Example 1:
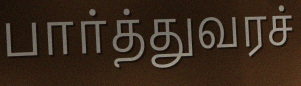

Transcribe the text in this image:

பார்த்துவரச்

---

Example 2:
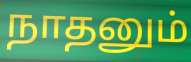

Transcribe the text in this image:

நாதனும்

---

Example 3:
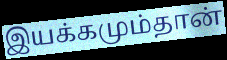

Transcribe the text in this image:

இயக்கமும்தான்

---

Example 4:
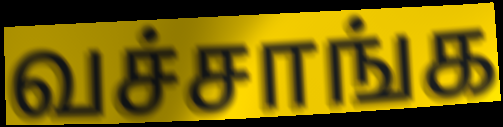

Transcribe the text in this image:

வச்சாங்க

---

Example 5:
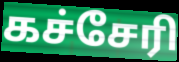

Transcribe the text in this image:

கச்சேரி